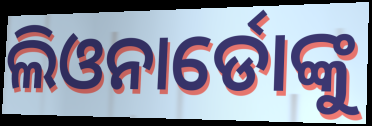
ଲିଓନାର୍ଡୋଙ୍କୁ